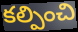
కల్పించి